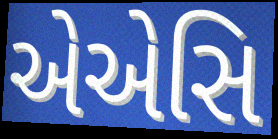
એએસિ